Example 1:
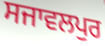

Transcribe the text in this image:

ਸਜਾਵਲਪੁਰ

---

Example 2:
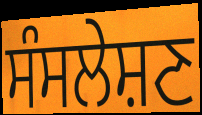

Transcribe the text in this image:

ਸੰਸਲੇਸ਼ਣ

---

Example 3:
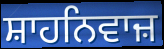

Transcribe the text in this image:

ਸ਼ਾਹਨਿਵਾਜ਼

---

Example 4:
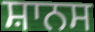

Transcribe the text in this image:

ਸ਼ਾਨਸ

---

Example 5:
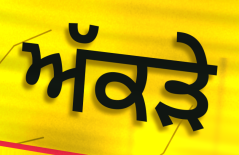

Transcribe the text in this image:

ਅੱਕੜੇ